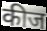
कीज